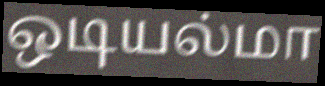
ஒடியல்மா